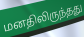
மனதிலிருந்தது